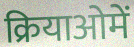
क्रियाओमें